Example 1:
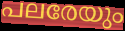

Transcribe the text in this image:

പലരേയും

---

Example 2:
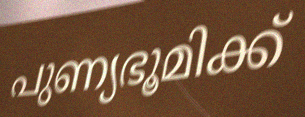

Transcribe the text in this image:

പുണ്യഭൂമിക്ക്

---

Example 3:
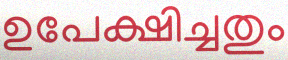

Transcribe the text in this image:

ഉപേക്ഷിച്ചതും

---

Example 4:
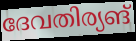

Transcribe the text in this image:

ദേവതിര്യങ്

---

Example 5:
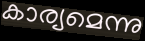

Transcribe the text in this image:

കാര്യമെന്നു